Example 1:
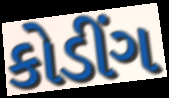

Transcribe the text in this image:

કોડીંગ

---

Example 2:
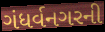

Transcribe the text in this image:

ગંધર્વનગરની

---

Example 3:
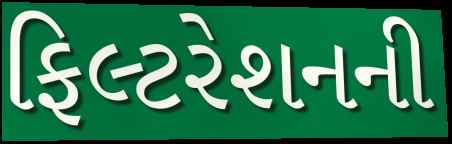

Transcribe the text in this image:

ફિલ્ટરેશનની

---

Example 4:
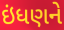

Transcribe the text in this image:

ઇંધણને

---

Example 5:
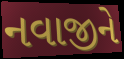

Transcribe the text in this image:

નવાજીને